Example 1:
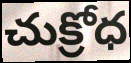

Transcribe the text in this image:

చుక్రోధ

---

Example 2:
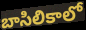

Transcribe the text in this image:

బాసిలికాలో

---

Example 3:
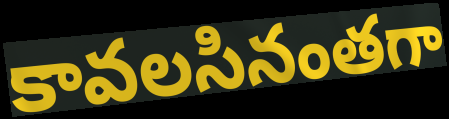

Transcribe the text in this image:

కావలసినంతగా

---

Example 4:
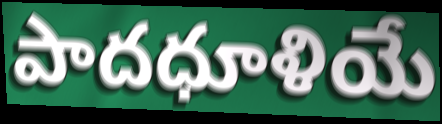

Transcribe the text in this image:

పాదధూళియే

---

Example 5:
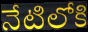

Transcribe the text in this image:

నేటిలోకి